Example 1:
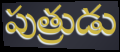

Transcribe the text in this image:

పుత్రుడు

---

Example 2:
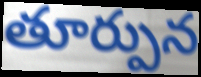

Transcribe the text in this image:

తూర్పున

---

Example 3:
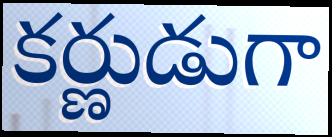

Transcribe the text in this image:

కర్ణుడుగా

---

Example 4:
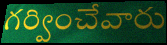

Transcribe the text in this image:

గర్వించేవారు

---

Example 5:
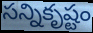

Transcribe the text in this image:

సన్నికృష్టం